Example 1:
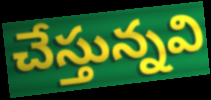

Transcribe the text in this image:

చేస్తున్నవి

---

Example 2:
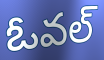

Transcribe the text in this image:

ఓవల్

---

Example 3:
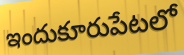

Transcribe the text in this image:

ఇందుకూరుపేటలో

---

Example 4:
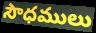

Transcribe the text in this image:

సౌధములు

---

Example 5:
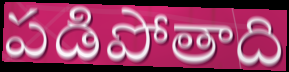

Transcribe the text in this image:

పడిపోతాది